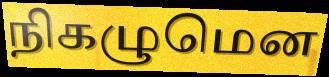
நிகழுமென